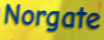
Norgate